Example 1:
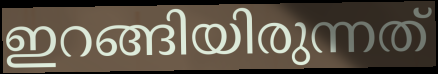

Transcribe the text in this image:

ഇറങ്ങിയിരുന്നത്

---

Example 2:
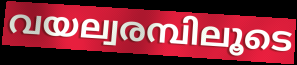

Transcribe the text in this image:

വയല്വരമ്പിലൂടെ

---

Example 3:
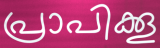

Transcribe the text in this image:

പ്രാപിക്കൂ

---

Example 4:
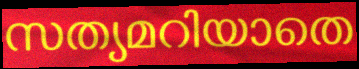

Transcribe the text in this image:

സത്യമറിയാതെ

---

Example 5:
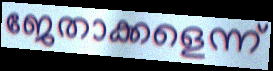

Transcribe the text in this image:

ജേതാക്കളെന്ന്